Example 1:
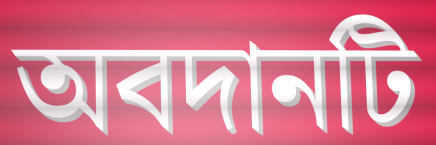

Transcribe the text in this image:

অবদানটি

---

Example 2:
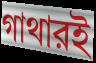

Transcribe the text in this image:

গাথারই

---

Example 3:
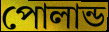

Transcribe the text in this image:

পোলান্ড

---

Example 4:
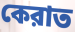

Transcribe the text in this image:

কেরাত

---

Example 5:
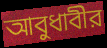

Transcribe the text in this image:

আবুধাবীর